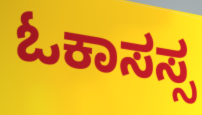
ಓಕಾಸಸ್ಸ